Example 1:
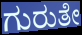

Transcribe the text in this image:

ಗುರುತೇ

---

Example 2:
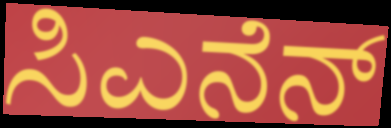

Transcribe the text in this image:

ಸಿಎನೆನ್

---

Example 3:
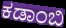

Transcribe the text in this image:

ಕಡಾಂಬಿ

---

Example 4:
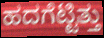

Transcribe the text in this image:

ಹದಗೆಟ್ಟಿತ್ತು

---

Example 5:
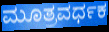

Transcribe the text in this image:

ಮೂತ್ರವರ್ಧಕ